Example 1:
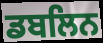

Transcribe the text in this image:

ਡਬਲਿਨ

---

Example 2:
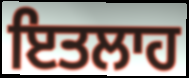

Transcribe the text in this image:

ਇਤਲਾਹ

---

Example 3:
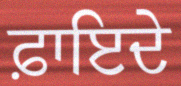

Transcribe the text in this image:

ਫ਼ਾਇਦੇ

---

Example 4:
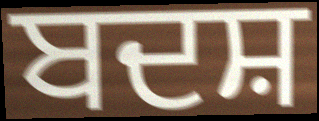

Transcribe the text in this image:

ਬਦਸ਼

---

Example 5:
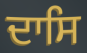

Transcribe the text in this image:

ਦਾਸਿ